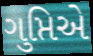
ગુપ્તિએ